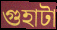
গুহাটা